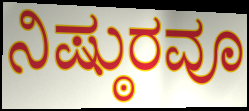
ನಿಷ್ಠುರವೂ